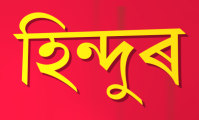
হিন্দুৰ